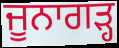
ਜੂਨਾਗੜ੍ਹ